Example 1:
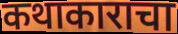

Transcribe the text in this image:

कथाकाराचा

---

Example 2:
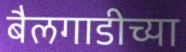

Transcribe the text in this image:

बैलगाडीच्या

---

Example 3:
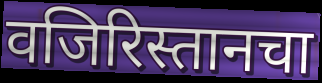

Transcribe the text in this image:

वजिरिस्तानचा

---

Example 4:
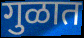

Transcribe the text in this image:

गुळात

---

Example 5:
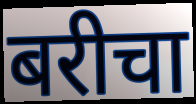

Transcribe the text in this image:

बरीचा